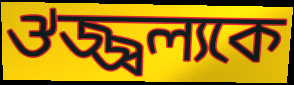
ঔজ্জ্বল্যকে